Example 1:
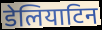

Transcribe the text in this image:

डेलियाटिन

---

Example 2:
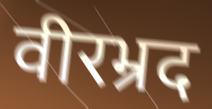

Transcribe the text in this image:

वीरभ्रद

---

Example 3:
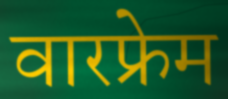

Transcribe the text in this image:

वारफ्रेम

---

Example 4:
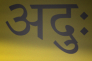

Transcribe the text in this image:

अदुः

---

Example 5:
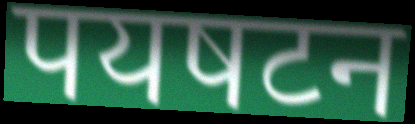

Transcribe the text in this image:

पयषटन